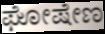
ಘೋಷೇಣ